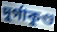
দুর্গাকুণ্ড